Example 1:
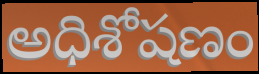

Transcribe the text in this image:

అధిశోషణం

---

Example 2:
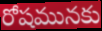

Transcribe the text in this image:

రోషమునకు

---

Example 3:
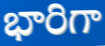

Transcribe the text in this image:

భారిగా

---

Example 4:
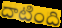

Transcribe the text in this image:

దాటింది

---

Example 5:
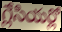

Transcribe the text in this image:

గ్లేసియర్లో